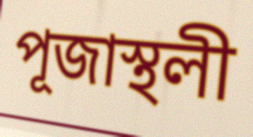
পূজাস্থলী